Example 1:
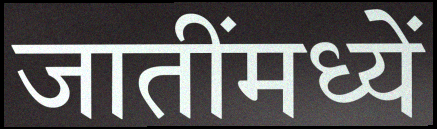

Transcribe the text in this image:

जातींमध्यें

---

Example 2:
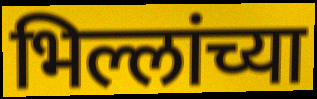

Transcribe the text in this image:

भिल्लांच्या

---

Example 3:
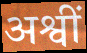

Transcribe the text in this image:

अश्वीं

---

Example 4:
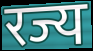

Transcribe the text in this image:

रज्य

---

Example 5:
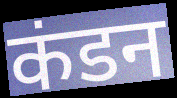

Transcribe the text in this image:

कंडन